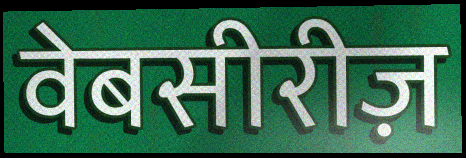
वेबसीरीज़